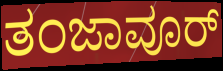
ತಂಜಾವೂರ್